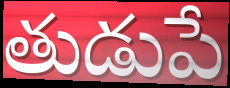
తుడుపే